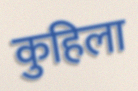
कुहिला